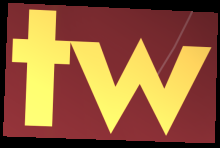
tw